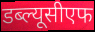
डब्ल्यूसीएफ